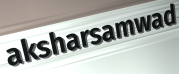
aksharsamwad